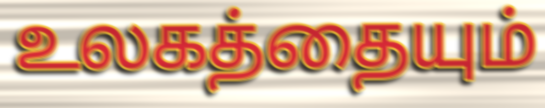
உலகத்தையும்